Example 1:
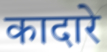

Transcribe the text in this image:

कादारे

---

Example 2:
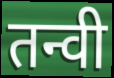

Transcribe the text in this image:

तन्वी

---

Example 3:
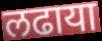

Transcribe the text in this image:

लढाया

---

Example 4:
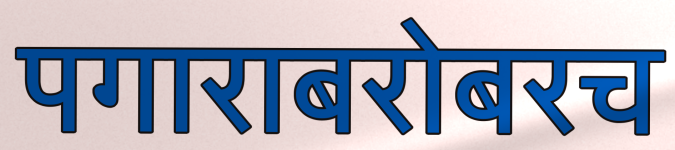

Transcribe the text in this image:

पगाराबरोबरच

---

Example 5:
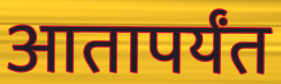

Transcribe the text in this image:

आतापर्यंत